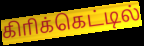
கிரிக்கெட்டில்